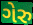
ગેરુ